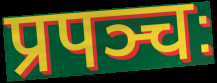
प्रपञ्चः